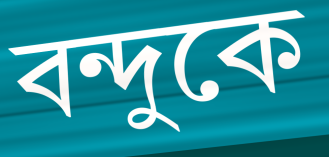
বন্দুকে